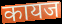
कायज